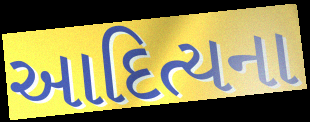
આદિત્યના